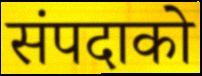
संपदाको